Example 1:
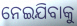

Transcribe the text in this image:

ନେଇଯିବାକୁ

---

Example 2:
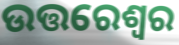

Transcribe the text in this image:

ଉତ୍ତରେଶ୍ୱର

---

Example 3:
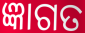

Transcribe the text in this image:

ଜ୍ଞାଗତ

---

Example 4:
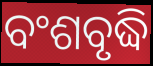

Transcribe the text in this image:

ବଂଶବୃଦ୍ଧି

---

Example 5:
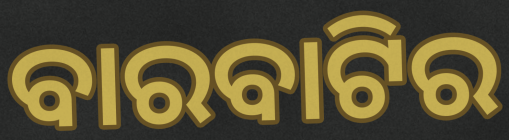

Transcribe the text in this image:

ବାରବାଟିର